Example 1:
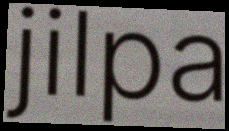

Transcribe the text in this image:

jilpa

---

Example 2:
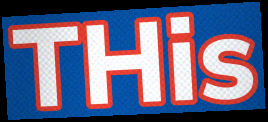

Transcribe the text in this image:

THis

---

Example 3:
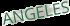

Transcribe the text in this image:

ANGELES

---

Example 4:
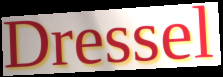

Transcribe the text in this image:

Dressel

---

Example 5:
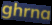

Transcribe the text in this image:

ghrna